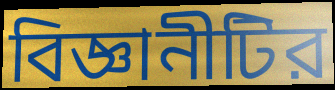
বিজ্ঞানীটির